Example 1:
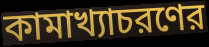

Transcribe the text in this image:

কামাখ্যাচরণের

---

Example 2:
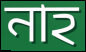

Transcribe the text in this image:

নাহ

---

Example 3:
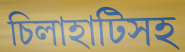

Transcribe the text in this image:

চিলাহাটিসহ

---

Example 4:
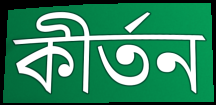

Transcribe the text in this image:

কীর্তন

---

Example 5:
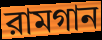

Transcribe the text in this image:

রামগান